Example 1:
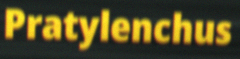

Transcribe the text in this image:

Pratylenchus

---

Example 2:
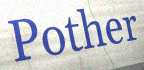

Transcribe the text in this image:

Pother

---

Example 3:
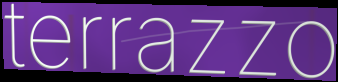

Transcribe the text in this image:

terrazzo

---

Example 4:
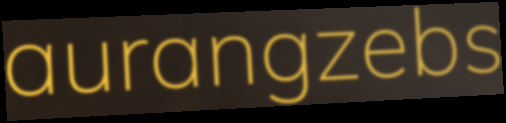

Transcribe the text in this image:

aurangzebs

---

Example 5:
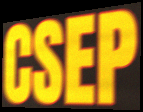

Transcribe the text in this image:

CSEP